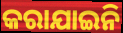
କରାଯାଇନି